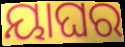
ୟାଘର